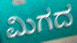
ಮಿಗದ